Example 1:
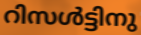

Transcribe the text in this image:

റിസൾട്ടിനു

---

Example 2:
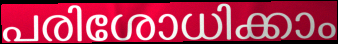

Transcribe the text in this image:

പരിശോധിക്കാം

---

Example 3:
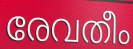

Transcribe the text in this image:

രേവതീം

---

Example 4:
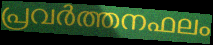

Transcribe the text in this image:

പ്രവർത്തനഫലം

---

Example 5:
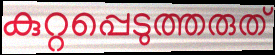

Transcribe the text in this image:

കുറ്റപ്പെടുത്തരുത്